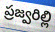
ప్రజ్వరిల్లి